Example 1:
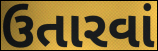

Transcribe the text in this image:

ઉતારવાં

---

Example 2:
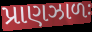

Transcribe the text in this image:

પ્રાણઝાળઃ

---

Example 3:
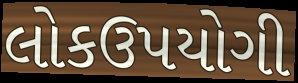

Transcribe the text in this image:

લોકઉપયોગી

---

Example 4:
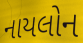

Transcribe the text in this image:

નાયલોન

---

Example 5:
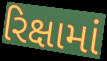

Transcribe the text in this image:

રિક્ષામાં